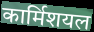
कार्मिशयल